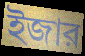
ইজার